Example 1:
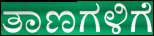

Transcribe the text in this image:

ತಾಣಗಳಿಗೆ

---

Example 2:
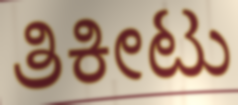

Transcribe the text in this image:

ತಿಕೀಟು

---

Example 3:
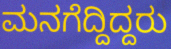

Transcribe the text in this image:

ಮನಗೆದ್ದಿದ್ದರು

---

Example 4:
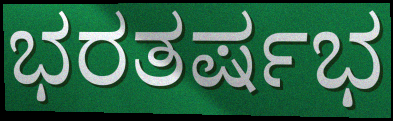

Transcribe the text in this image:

ಭರತರ್ಷಭ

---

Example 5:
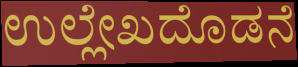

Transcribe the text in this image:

ಉಲ್ಲೇಖದೊಡನೆ